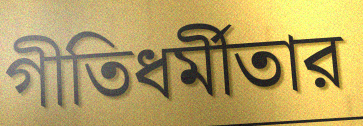
গীতিধর্মীতার